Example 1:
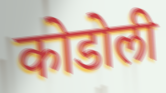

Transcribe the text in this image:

कोडोली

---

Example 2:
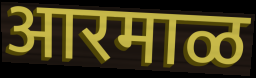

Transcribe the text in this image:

आरमाळ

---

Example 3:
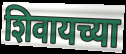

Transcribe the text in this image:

शिवायच्या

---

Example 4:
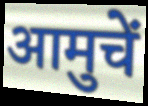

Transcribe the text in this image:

आमुचें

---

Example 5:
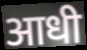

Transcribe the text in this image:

आधी